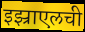
इझ्राएलची